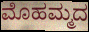
ಮೊಹಮ್ಮದ